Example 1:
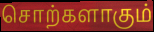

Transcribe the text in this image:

சொற்களாகும்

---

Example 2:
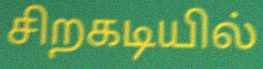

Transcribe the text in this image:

சிறகடியில்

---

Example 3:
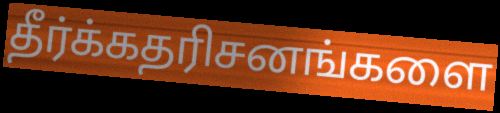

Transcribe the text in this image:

தீர்க்கதரிசனங்களை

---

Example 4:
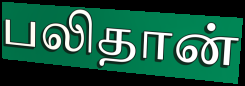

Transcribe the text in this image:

பலிதான்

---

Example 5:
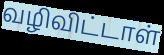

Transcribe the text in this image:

வழிவிட்டாள்